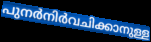
പുനർനിർവചിക്കാനുള്ള